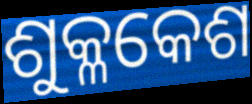
ଶୁକ୍ଳକେଶ